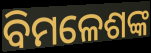
ବିମଳେଶଙ୍କ